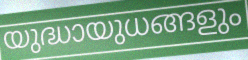
യുദ്ധായുധങ്ങളും